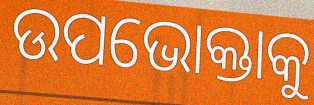
ଉପଭୋକ୍ତାକୁ